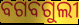
ବଗବଗୁଲୀ